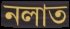
নলাত